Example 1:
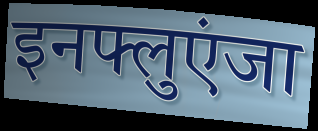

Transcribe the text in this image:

इनफ्लुएंजा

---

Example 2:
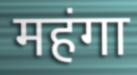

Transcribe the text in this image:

महंगा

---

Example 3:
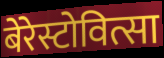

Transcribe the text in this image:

बेरेस्टोवित्सा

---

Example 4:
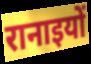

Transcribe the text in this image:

रानाइयों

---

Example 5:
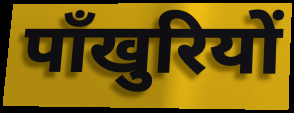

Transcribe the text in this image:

पाँखुरियों